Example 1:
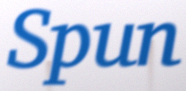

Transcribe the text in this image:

Spun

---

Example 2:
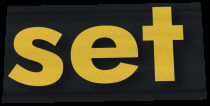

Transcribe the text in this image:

set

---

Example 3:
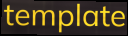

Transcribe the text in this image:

template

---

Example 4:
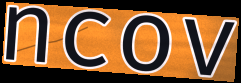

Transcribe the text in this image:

ncov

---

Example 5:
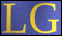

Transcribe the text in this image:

LG